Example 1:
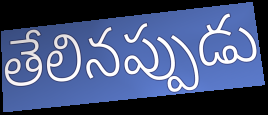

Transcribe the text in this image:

తేలినప్పుడు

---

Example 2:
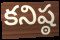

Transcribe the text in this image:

కనిష్ఠ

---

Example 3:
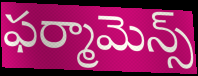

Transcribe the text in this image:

ఫర్మామెన్స్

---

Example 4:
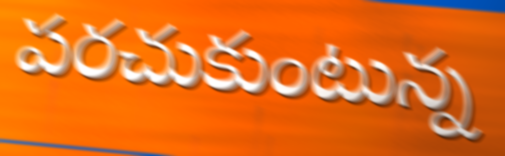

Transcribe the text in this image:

పరచుకుంటున్న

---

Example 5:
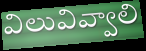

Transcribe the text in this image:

విలువివ్వాలి